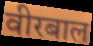
वीरबाल